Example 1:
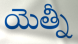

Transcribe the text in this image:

యెత్నీ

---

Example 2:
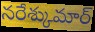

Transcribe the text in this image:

నరేశ్కుమార్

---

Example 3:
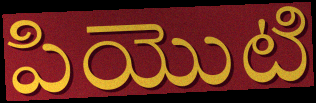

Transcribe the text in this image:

పియొటి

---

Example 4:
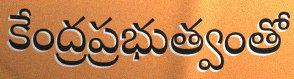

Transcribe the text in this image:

కేంద్రప్రభుత్వంతో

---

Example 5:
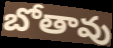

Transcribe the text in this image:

బోతావు